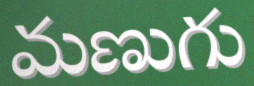
మణుగు